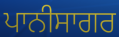
ਪਾਨੀਸਾਗਰ